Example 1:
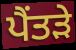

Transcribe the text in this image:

ਪੈਂਤੜੇ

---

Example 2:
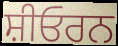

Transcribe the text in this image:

ਸ਼ੀਓਰਨ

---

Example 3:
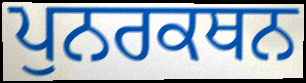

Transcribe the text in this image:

ਪੁਨਰਕਥਨ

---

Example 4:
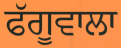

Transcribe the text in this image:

ਫੱਗੂਵਾਲਾ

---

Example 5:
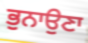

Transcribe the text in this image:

ਭੁਨਾਉਣਾ